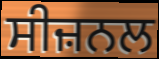
ਸੀਜ਼ਨਲ